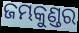
ଜମ୍ଭକୁଣ୍ଡର